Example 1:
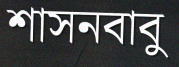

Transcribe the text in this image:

শাসনবাবু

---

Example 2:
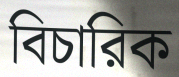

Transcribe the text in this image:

বিচারিক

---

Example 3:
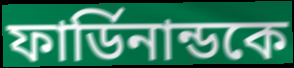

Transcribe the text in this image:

ফার্ডিনান্ডকে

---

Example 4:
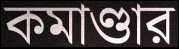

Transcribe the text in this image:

কমাণ্ডার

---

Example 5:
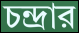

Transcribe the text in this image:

চন্দ্রার